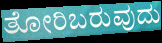
ತೋರಿಬರುವುದು